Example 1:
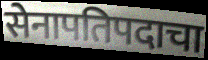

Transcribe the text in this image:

सेनापतिपदाचा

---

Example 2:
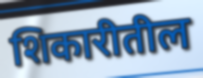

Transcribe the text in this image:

शिकारीतील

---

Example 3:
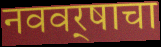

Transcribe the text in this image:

नववर्षाचा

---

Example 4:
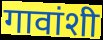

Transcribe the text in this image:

गावांशी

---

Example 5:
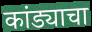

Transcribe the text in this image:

कांड्याचा